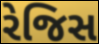
રેજિસ